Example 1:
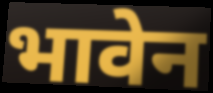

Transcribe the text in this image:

भावेन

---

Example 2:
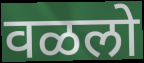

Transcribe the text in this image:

वळलो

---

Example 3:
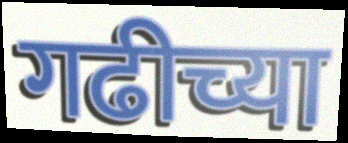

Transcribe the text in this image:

गढीच्या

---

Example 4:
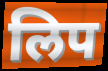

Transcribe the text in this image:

लिप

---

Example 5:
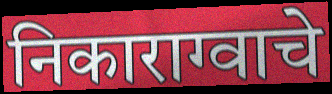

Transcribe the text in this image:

निकाराग्वाचे